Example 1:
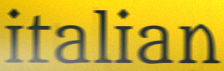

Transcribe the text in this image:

italian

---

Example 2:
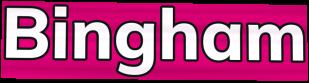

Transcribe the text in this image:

Bingham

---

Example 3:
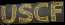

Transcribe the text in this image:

USCF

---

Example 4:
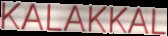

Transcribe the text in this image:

KALAKKAL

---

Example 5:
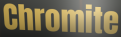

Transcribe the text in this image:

Chromite